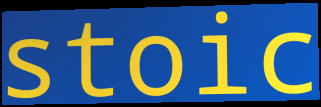
stoic